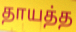
தாயத்த